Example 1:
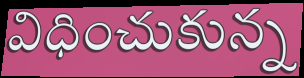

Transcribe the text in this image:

విధించుకున్న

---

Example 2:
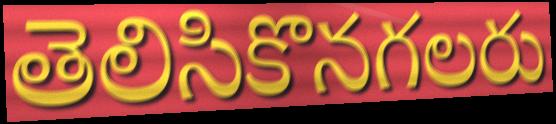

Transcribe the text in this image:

తెలిసికొనగలరు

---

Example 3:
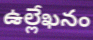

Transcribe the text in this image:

ఉల్లేఖనం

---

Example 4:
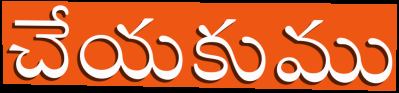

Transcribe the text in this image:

చేయకుము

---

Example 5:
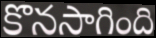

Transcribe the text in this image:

కొనసాగింది